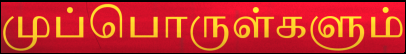
முப்பொருள்களும்